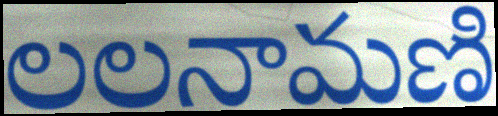
లలనామణి